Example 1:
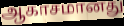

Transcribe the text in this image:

ஆகாசமானது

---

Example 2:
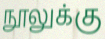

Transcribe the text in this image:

நூலுக்கு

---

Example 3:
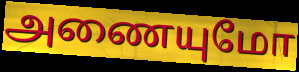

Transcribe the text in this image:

அணையுமோ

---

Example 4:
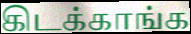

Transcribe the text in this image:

கிடக்காங்க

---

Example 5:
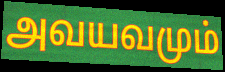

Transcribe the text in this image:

அவயவமும்